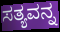
ಸತ್ಯವನ್ನ